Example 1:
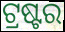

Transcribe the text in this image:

ଟ୍ରଷ୍ଟର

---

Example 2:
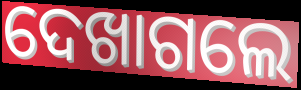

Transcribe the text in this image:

ଦେଖାଗଲେ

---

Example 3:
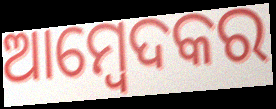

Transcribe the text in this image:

ଆମ୍ବେଦକର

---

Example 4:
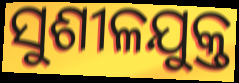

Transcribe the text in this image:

ସୁଶୀଳଯୁକ୍ତ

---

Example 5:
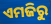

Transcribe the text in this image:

ଏମଜିରୁ